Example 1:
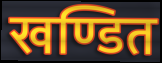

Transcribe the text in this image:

खण्डित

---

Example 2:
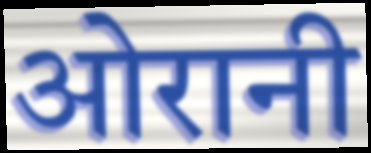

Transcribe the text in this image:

ओरानी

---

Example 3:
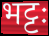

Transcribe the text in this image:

भट्टः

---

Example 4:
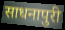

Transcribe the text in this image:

साधनापुरी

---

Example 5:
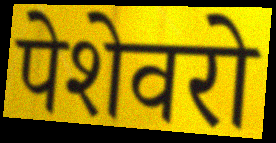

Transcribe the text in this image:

पेशेवरो